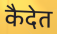
कैदेत